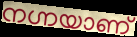
നഗ്നയാണ്